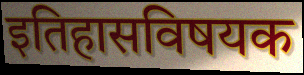
इतिहासविषयक